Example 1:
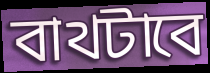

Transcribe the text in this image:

বাথটাবে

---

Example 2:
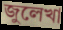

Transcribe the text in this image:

জুলেখা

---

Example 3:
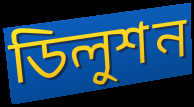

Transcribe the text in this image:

ডিলুশন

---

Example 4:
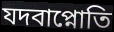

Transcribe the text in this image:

যদবাপ্নোতি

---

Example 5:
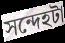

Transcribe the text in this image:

সন্দেহটা